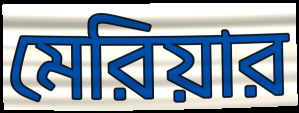
মেরিয়ার